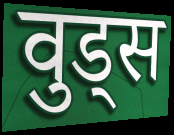
वुड्स